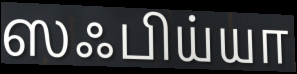
ஸஃபிய்யா